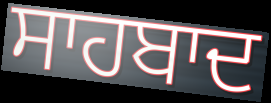
ਸਾਹਬਾਦ